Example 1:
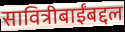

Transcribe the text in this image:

सावित्रीबाईंबद्दल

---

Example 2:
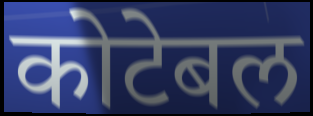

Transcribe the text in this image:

कोटेबल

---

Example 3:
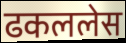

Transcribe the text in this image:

ढकललेस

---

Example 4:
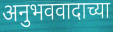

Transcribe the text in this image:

अनुभववादाच्या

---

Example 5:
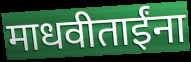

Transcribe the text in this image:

माधवीताईंना